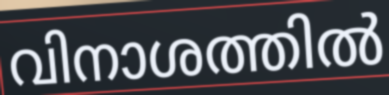
വിനാശത്തിൽ